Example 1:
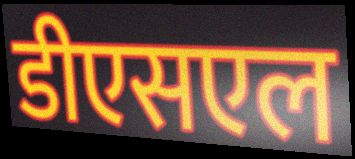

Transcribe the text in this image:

डीएसएल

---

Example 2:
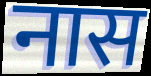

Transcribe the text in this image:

नास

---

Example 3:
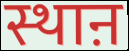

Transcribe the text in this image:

स्थाऩ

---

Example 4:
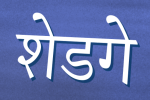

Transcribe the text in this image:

शेडगे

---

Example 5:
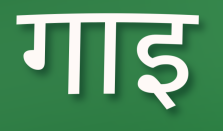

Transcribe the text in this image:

गाइ